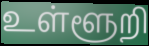
உள்ளூறி